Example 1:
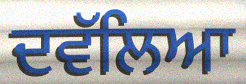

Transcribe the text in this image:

ਦਵੱਲਿਆ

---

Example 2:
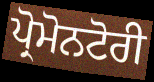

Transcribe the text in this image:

ਪ੍ਰੋਮੋਨਟੋਰੀ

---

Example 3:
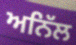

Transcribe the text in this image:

ਅਨਿੱਲ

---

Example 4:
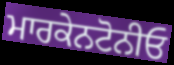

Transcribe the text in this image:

ਮਾਰਕੇਨਟੋਨੀਓ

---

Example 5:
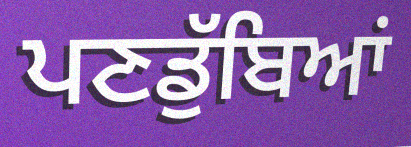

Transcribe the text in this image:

ਪਣਡੁੱਬਿਆਂ